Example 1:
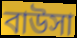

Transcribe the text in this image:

বাউসা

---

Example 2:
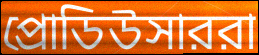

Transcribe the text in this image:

প্রোডিউসাররা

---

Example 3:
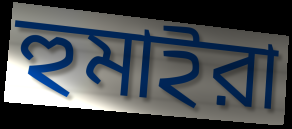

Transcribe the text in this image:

হুমাইরা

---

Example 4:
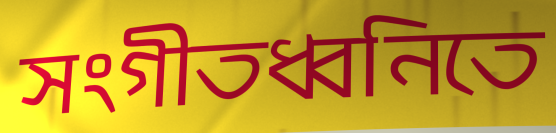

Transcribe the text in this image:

সংগীতধ্বনিতে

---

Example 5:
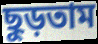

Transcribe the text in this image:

ছুড়তাম